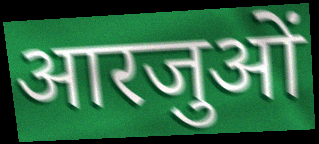
आरजुओं